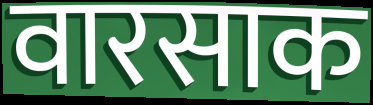
वारसाक